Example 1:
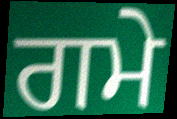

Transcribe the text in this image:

ਗਮੇ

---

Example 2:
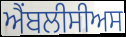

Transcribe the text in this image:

ਐਂਬਲੀਸੀਅਸ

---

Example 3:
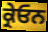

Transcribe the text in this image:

ਕ੍ਰੇਓਨ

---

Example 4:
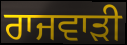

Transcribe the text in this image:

ਰਾਜਵਾੜੀ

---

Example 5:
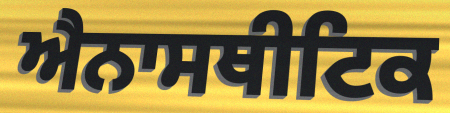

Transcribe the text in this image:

ਐਨਾਸਥੀਟਿਕ